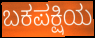
ಬಕಪಕ್ಷಿಯ